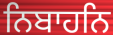
ਨਿਬਾਹਨਿ